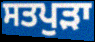
ਸਤਪੁੜਾ